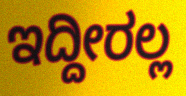
ಇದ್ದೀರಲ್ಲ